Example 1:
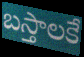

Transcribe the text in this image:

బస్తాలకే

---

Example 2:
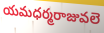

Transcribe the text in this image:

యమధర్మరాజువలె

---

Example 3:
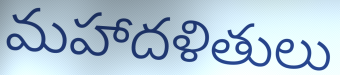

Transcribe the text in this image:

మహాదళితులు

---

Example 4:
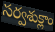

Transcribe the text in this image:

సర్వశుక్లాం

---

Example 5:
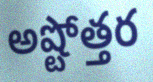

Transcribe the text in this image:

అష్టోత్తర